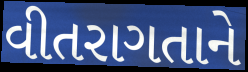
વીતરાગતાને